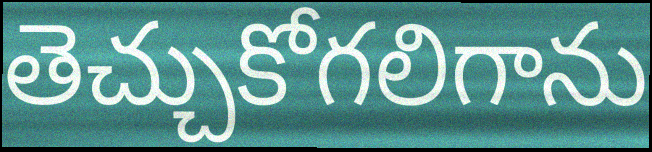
తెచ్చుకోగలిగాను